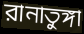
রানাতুঙ্গা